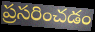
ప్రసరించడం